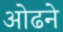
ओढने